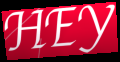
HEY